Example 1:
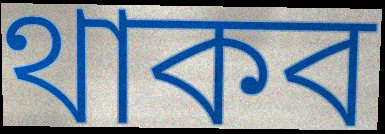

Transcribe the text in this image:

থাকব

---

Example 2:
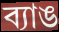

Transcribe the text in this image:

ব্যাঙ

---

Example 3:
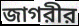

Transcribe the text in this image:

জাগরীর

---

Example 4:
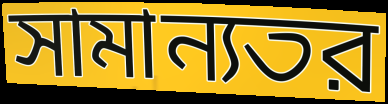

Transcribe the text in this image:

সামান্যতর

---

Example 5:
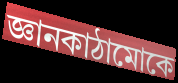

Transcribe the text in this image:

জ্ঞানকাঠামোকে